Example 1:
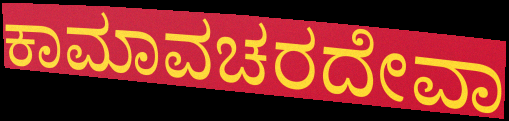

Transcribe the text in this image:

ಕಾಮಾವಚರದೇವಾ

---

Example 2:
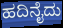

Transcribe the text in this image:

ಹದಿನೈದು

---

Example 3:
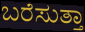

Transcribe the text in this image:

ಬರೆಸುತ್ತಾ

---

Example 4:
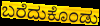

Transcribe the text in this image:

ಬರೆದುಕೊಂಡು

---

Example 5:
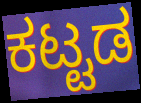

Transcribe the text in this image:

ಕಟ್ಟಡ